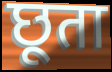
छूता